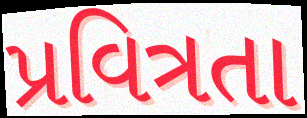
પ્રવિત્રતા